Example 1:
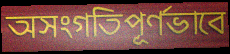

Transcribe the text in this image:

অসংগতিপূর্ণভাবে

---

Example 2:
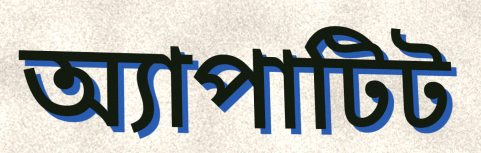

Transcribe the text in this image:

অ্যাপাটিট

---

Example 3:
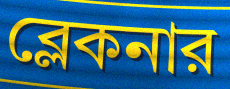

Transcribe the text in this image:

ব্লেকনার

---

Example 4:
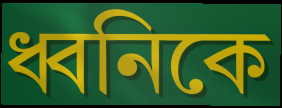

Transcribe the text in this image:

ধ্বনিকে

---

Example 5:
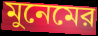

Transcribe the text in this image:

মুনেমের